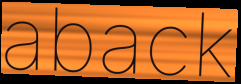
aback